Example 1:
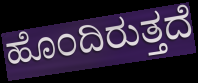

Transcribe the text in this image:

ಹೊಂದಿರುತ್ತದೆ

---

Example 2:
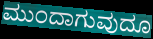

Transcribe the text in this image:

ಮುಂದಾಗುವುದೂ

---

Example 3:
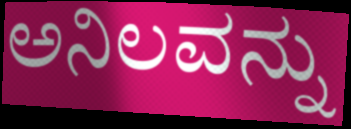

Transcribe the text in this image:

ಅನಿಲವನ್ನು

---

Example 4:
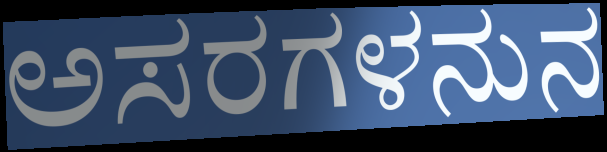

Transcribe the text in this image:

ಅಸರಗಳನುನ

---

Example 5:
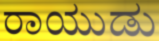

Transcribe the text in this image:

ರಾಯುಡು